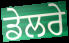
ਡੇਲਰੇ